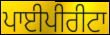
ਪਾਈਪੀਰੀਟਾ